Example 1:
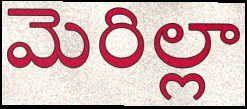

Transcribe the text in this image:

మెరిల్లా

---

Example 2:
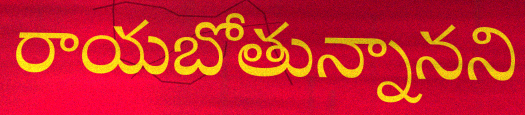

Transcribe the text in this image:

రాయబోతున్నానని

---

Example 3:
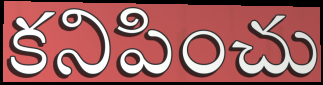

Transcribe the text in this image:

కనిపించు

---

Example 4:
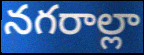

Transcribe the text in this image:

నగరాల్లా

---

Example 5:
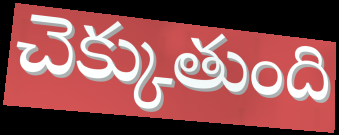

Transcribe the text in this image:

చెక్కుతుంది